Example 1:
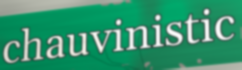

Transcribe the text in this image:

chauvinistic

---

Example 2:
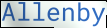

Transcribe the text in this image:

Allenby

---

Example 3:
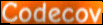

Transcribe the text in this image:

Codecov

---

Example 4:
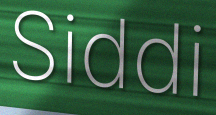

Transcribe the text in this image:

Siddi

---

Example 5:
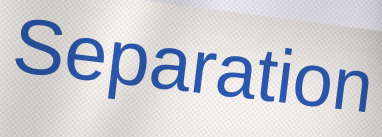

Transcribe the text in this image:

Separation